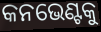
କନଭେଣ୍ଟକୁ